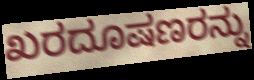
ಖರದೂಷಣರನ್ನು